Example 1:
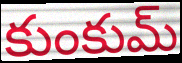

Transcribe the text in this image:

కుంకుమ్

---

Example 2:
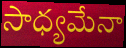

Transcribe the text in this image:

సాధ్యమేనా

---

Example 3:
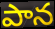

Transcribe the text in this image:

పాన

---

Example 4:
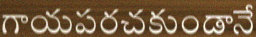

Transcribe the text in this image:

గాయపరచకుండానే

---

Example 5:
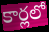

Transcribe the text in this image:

కార్లలో